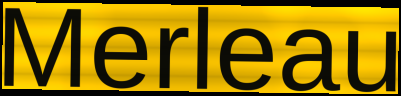
Merleau